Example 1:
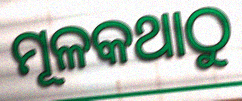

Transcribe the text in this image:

ମୂଳକଥାଠୁ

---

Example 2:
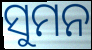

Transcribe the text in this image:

ସୁମନ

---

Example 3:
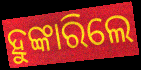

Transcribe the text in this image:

ହୁଙ୍କାରିଲେ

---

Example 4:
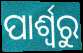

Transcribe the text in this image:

ପାର୍ଶ୍ଵରୁ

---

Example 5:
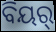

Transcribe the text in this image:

ବିୟର୍